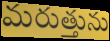
మరుత్తును